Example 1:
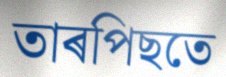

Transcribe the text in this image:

তাৰপিছতে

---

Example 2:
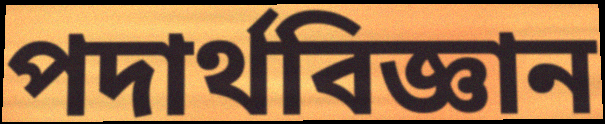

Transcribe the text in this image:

পদাৰ্থবিজ্ঞান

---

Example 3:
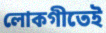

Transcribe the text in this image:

লোকগীতেই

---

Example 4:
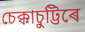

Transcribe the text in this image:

চেক্কাচুট্টিৰে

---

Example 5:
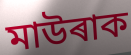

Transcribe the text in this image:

মাউৰাক